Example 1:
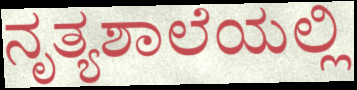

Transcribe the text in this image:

ನೃತ್ಯಶಾಲೆಯಲ್ಲಿ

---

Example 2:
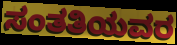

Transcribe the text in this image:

ಸಂತತಿಯವರ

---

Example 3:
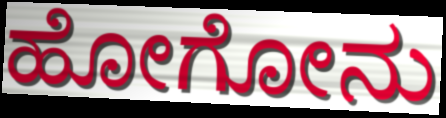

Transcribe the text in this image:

ಹೋಗೋನು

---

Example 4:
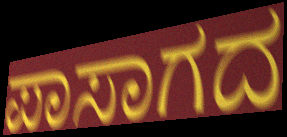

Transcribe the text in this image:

ಪಾಸಾಗದ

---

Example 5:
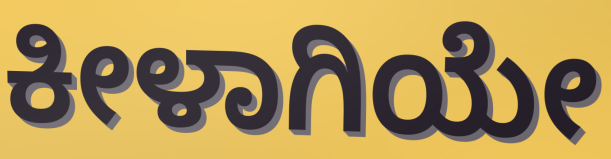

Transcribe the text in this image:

ಕೀಳಾಗಿಯೇ